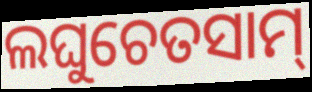
ଲଘୁଚେତସାମ୍